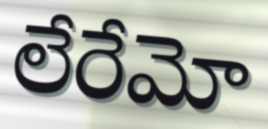
లేరేమో